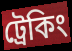
ট্ৰেকিং